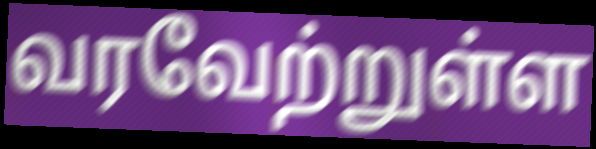
வரவேற்றுள்ள